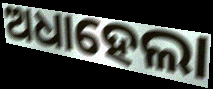
ଅଧାହେଲା